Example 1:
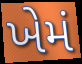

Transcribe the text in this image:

ખેમં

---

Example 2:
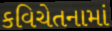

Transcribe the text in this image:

કવિચેતનામાં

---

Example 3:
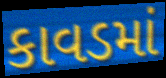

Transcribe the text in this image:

કાવડમાં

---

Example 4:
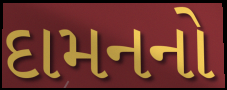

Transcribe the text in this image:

દામનનો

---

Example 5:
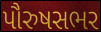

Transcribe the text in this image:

પૌરુષસભર